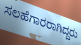
ಸಲಹೆಗಾರರಾಗಿದ್ದರು